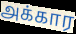
அக்கார